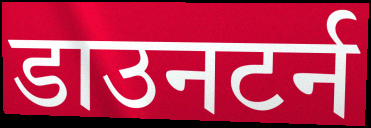
डाउनटर्न